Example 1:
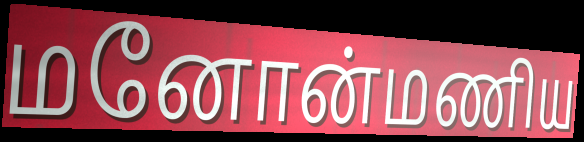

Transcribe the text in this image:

மனோன்மணிய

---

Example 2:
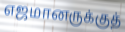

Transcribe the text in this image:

எஜமானருக்குத்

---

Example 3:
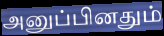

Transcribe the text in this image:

அனுப்பினதும்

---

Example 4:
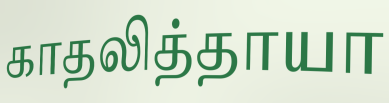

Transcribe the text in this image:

காதலித்தாயா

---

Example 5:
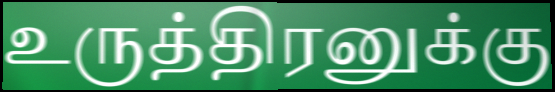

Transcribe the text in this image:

உருத்திரனுக்கு